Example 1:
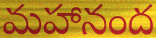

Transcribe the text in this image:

మహానంద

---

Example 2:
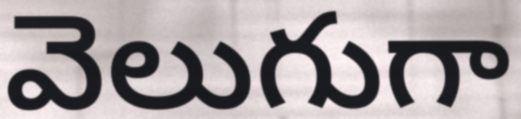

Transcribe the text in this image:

వెలుగుగా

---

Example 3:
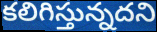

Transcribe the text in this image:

కలిగిస్తున్నదని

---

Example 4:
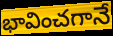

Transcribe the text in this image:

భావించగానే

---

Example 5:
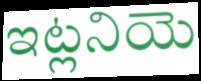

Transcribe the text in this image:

ఇట్లనియె